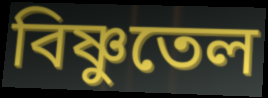
বিষ্ণুতেল